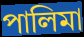
পালিমা